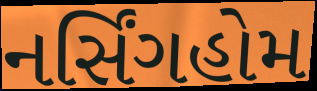
નર્સિંગહોમ